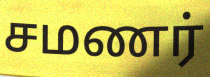
சமணர்